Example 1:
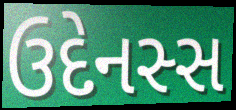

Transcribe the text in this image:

ઉદેનસ્સ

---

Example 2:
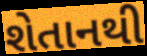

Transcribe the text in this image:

શેતાનથી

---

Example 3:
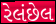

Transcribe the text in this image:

રેલંછેલ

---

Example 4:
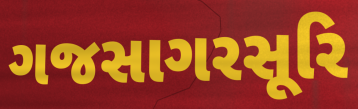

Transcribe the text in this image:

ગજસાગરસૂરિ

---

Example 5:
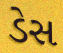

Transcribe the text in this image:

ડેસ